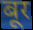
बूर